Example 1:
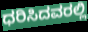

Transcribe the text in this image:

ಧರಿಸಿದವರಲ್ಲಿ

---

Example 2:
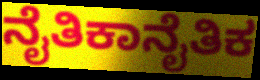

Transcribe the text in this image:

ನೈತಿಕಾನೈತಿಕ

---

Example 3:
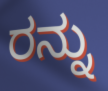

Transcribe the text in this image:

ರನ್ನು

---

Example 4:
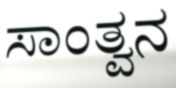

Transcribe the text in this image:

ಸಾಂತ್ವನ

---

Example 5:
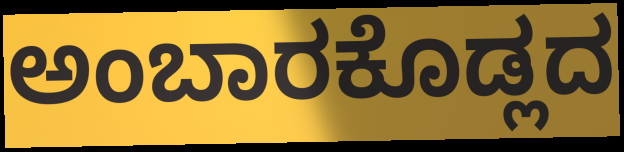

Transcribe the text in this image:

ಅಂಬಾರಕೊಡ್ಲದ